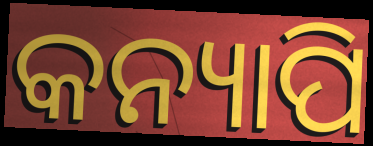
କନ୍ୟାପି